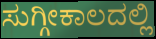
ಸುಗ್ಗೀಕಾಲದಲ್ಲಿ